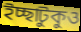
ইচ্ছাটুকুও